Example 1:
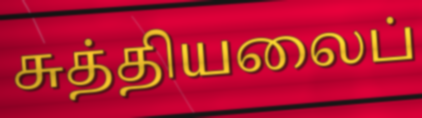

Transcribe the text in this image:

சுத்தியலைப்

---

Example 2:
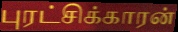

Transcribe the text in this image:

புரட்சிக்காரன்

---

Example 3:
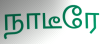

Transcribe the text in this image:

நாடீரே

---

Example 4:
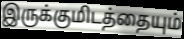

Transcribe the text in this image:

இருக்குமிடத்தையும்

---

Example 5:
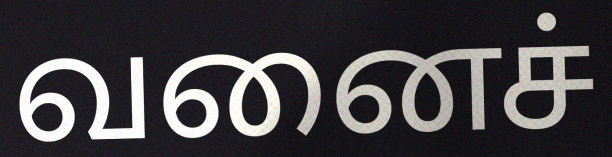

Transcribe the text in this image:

வனைச்